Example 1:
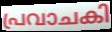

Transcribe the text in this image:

പ്രവാചകി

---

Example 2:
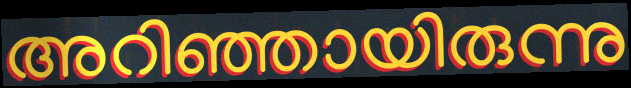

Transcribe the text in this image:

അറിഞ്ഞായിരുന്നു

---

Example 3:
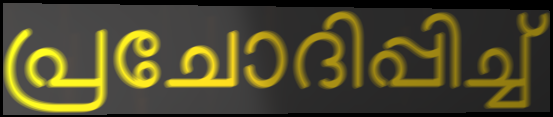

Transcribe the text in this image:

പ്രചോദിപ്പിച്ച്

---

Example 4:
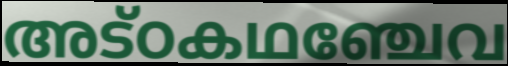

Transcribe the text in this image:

അട്ഠകഥഞ്ചേവ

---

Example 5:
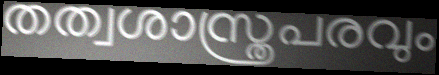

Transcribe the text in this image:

തത്വശാസ്ത്രപരവും